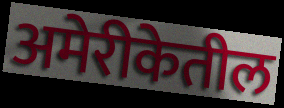
अमेरीकेतील